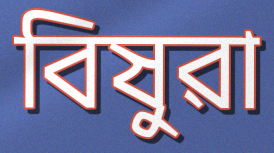
বিষুৱা